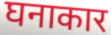
घनाकार